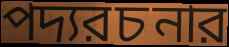
পদ্যরচনার